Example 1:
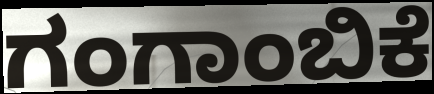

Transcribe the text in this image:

ಗಂಗಾಂಬಿಕೆ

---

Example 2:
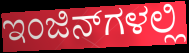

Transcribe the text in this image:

ಇಂಜಿನ್‌ಗಳಲ್ಲಿ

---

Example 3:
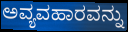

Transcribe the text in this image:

ಅವ್ಯವಹಾರವನ್ನು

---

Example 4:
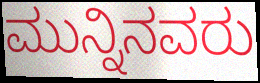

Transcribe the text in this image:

ಮುನ್ನಿನವರು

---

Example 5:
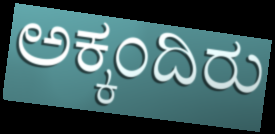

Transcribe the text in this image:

ಅಕ್ಕಂದಿರು